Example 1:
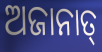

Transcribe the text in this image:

ଅଜାନାତ୍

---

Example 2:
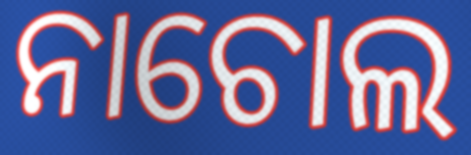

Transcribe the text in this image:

ନାଚୋଲ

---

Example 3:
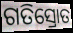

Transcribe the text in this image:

ଗତିସ୍ରୋତ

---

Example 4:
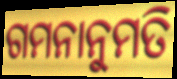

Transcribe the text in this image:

ଗମନାନୁମତି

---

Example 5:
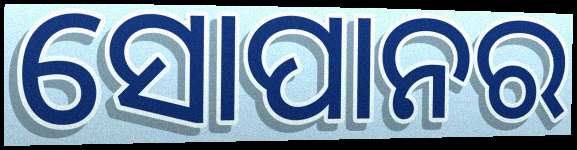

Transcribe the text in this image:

ସୋପାନର